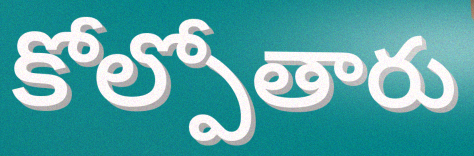
కోల్పోతారు